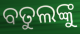
ବତୁଲଙ୍କୁ